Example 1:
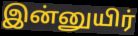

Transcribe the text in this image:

இன்னுயிர்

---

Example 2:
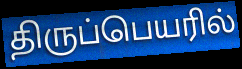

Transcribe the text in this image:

திருப்பெயரில்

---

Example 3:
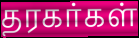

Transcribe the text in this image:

தரகர்கள்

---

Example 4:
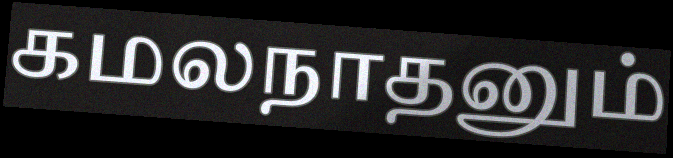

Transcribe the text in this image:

கமலநாதனும்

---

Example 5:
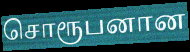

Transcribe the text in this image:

சொரூபனான